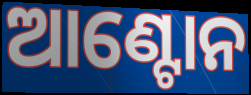
ଆଣ୍ଟୋନ